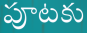
పూటకు